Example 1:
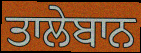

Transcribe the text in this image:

ਤਾਲੇਬਾਨ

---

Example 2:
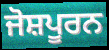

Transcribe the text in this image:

ਜੋਸ਼ਪੂਰਨ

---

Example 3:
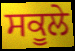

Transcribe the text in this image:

ਸਕੂਲੇ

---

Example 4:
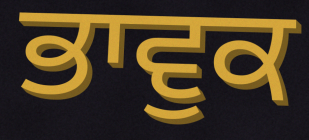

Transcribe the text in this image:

ਭਾਵੁਕ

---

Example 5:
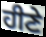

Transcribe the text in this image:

ਹੀਣੇ